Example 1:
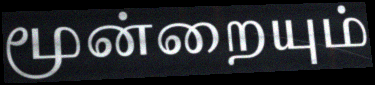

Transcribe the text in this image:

மூன்றையும்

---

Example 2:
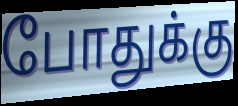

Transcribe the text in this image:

போதுக்கு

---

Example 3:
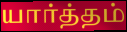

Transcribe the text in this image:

யார்த்தம்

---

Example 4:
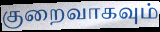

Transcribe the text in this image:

குறைவாகவும்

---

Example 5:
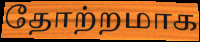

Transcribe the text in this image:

தோற்றமாக